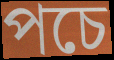
পচে